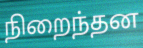
நிறைந்தன